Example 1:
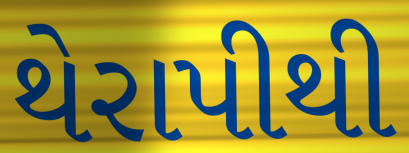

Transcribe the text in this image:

થેરાપીથી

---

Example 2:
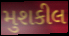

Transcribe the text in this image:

મુશકીલ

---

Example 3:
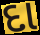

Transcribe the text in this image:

દા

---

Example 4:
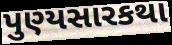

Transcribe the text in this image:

પુણ્યસારકથા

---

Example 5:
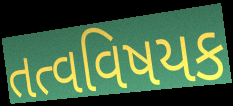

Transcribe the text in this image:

તત્વવિષયક